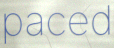
paced